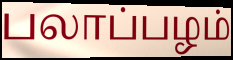
பலாப்பழம்